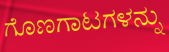
ಗೊಣಗಾಟಗಳನ್ನು